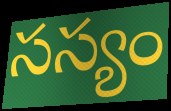
సస్యం